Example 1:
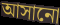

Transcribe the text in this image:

আসানো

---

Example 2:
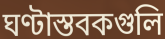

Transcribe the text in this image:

ঘণ্টাস্তবকগুলি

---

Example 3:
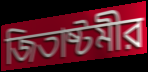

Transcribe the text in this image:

জিতাষ্টমীর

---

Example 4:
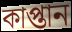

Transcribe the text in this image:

কাপ্তান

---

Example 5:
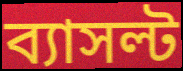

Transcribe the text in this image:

ব্যাসল্ট